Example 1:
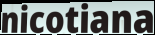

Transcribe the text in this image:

nicotiana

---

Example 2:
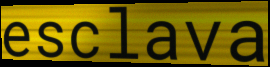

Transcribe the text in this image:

esclava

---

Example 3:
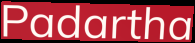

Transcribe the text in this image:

Padartha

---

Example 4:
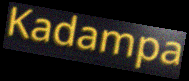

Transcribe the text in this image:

Kadampa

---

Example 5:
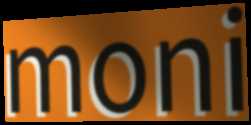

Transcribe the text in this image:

moni